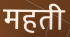
महती